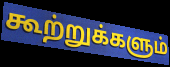
கூற்றுக்களும்